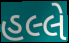
હલ્લે